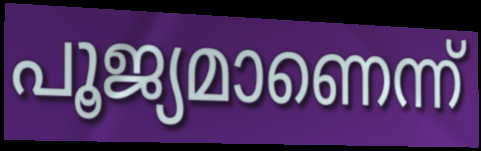
പൂജ്യമാണെന്ന്